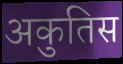
अकुतिस